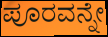
ಪೂರವನ್ನೇ